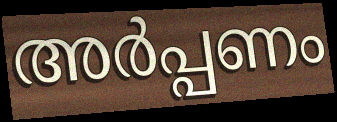
അർപ്പണം